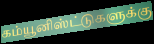
கம்யூனிஸ்ட்டுகளுக்கு